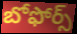
బోఫోర్స్